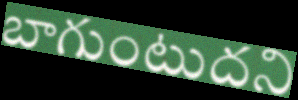
బాగుంటుదని